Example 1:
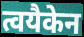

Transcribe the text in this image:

त्वयैकेन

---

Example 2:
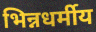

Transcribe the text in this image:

भिन्नधर्मीय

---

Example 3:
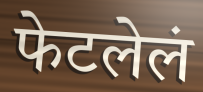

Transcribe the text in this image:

फेटलेलं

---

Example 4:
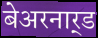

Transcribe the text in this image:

बेअरनार्ड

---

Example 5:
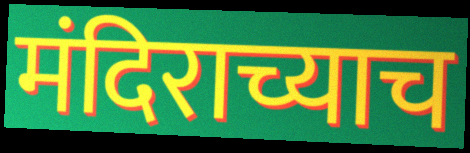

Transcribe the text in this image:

मंदिराच्याच